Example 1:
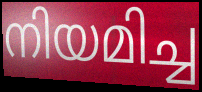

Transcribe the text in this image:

നിയമിച്ച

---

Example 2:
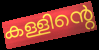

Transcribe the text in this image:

കള്ളിന്റെ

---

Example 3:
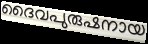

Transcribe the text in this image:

ദൈവപുരുഷനായ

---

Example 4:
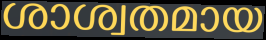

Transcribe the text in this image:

ശാശ്വതമായ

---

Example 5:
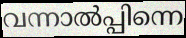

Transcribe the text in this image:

വന്നാൽപ്പിന്നെ